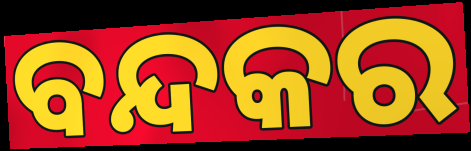
ବନ୍ଦକର